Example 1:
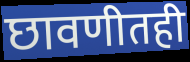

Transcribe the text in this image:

छावणीतही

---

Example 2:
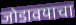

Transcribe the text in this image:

जोडावयाचा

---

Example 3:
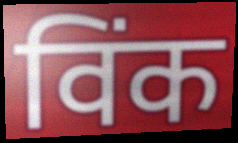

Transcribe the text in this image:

विंक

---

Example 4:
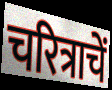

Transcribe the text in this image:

चरित्राचें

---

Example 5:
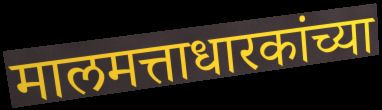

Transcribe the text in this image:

मालमत्ताधारकांच्या